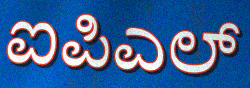
ಐಪಿಎಲ್